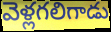
వెళ్లగలిగాడు